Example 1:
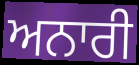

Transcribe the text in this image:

ਅਨਾਰੀ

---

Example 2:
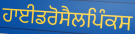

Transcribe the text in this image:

ਹਾਈਡਰੋਸੈਲਪਿੰਕਸ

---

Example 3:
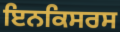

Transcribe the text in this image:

ਇਨਕਿਸਰਸ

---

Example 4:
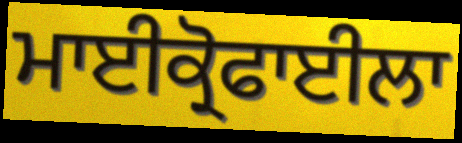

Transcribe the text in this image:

ਮਾਈਕ੍ਰੋਫਾਈਲਾ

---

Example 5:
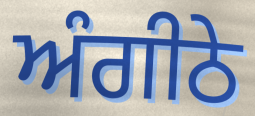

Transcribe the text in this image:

ਅੰਗੀਠੇ